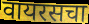
वायरसचा